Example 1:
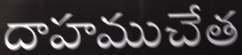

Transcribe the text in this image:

దాహముచేత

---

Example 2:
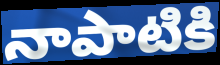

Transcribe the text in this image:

నాపాటికి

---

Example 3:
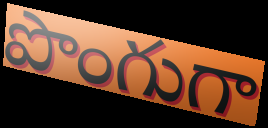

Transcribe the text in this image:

పొంగుగా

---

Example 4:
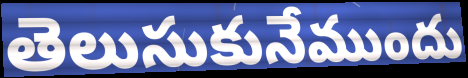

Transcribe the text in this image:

తెలుసుకునేముందు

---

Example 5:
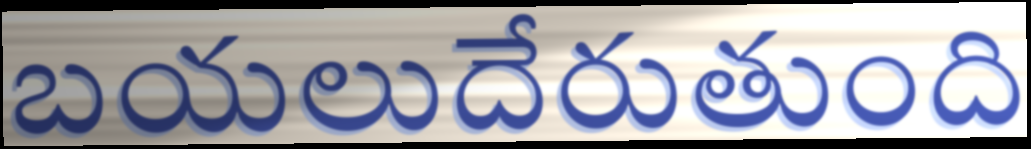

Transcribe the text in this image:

బయలుదేరుతుంది